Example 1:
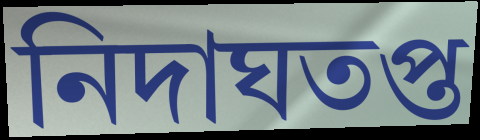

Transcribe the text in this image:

নিদাঘতপ্ত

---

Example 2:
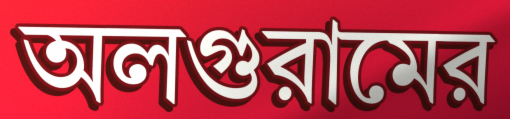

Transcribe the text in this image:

অলগুরামের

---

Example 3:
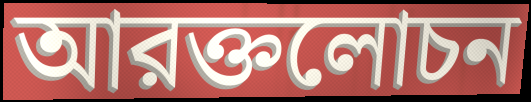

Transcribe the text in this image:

আরক্তলোচন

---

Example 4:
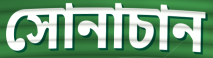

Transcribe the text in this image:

সোনাচান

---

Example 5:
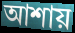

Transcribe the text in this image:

আশায়